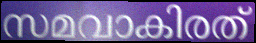
സമവാകിരത്